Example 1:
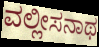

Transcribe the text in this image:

ವಲ್ಲೀಸನಾಥ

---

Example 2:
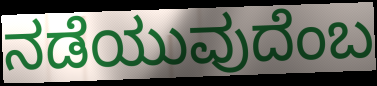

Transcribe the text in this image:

ನಡೆಯುವುದೆಂಬ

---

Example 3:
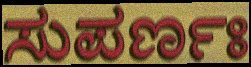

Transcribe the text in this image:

ಸುಪರ್ಣಃ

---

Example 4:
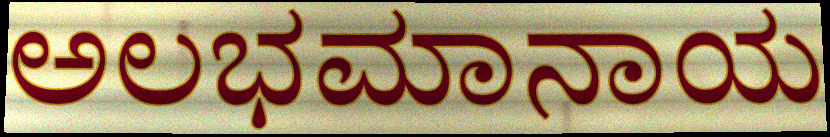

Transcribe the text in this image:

ಅಲಭಮಾನಾಯ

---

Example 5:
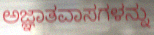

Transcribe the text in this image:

ಅಜ್ಞಾತವಾಸಗಳನ್ನು